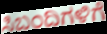
ಸಿಬಂದಿಗಳಿಗೆ